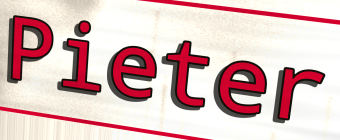
Pieter